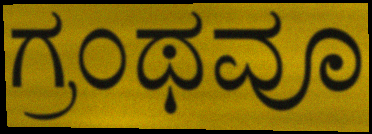
ಗ್ರಂಥವೂ